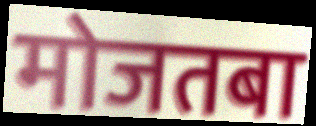
मोजतबा